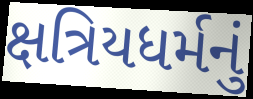
ક્ષત્રિયધર્મનું